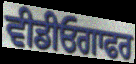
ਵੀਡੀਓਗਾਫਰ